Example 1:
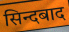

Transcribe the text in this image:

सिन्दबाद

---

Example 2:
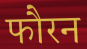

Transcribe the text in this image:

फौरन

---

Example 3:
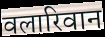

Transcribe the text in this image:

वलारिवान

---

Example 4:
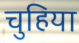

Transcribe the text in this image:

चुहिया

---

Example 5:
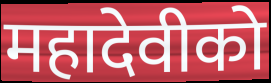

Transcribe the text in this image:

महादेवीको